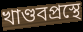
খাণ্ডবপ্রস্থে